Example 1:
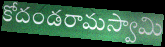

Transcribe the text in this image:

కోదండరామస్వామి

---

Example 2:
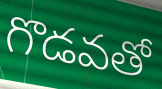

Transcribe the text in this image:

గొడవతో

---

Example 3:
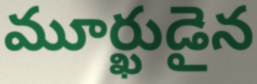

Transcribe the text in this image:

మూర్ఖుడైన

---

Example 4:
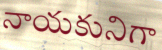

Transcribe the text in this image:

నాయకునిగా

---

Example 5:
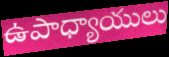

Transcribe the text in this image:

ఉపాధ్యాయులు